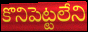
కొనిపెట్టలేని